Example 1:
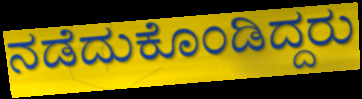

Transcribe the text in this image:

ನಡೆದುಕೊಂಡಿದ್ದರು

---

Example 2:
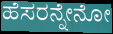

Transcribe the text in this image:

ಹೆಸರನ್ನೇನೋ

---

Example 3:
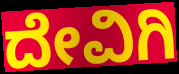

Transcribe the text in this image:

ದೇವಿಗಿ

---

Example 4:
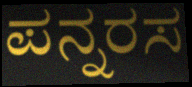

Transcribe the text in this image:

ಪನ್ನರಸ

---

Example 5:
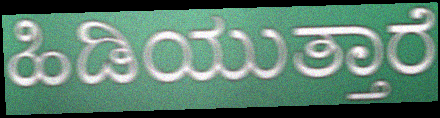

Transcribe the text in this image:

ಹಿಡಿಯುತ್ತಾರೆ